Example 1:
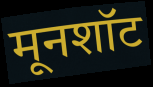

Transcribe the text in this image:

मूनशॉट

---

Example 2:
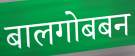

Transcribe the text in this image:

बालगोबबन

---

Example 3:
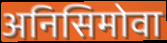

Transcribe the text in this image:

अनिसिमोवा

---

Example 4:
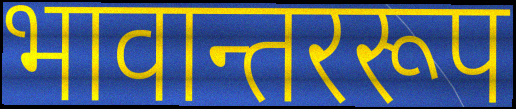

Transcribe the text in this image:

भावान्तररूप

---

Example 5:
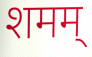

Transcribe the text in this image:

शमम्